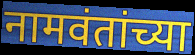
नामवंतांच्या